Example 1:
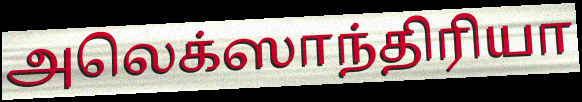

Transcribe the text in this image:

அலெக்ஸாந்திரியா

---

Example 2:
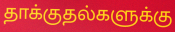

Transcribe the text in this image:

தாக்குதல்களுக்கு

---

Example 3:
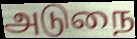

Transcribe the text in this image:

அடுநை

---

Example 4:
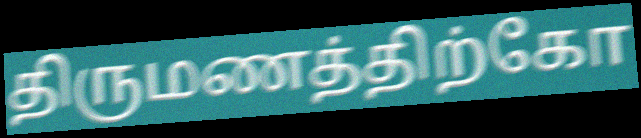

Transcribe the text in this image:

திருமணத்திற்கோ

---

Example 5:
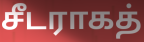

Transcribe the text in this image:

சீடராகத்